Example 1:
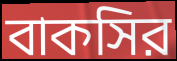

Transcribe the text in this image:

বাকসির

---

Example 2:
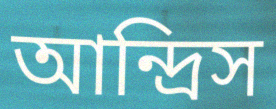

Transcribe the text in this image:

আন্দ্রিস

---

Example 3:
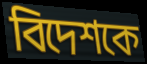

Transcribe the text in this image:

বিদেশকে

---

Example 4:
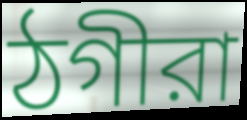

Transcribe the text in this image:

ঠগীরা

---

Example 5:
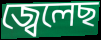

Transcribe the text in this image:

জ্বেলেছ